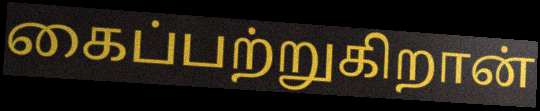
கைப்பற்றுகிறான்